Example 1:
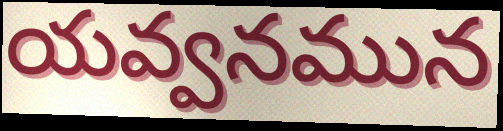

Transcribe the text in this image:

యవ్వనమున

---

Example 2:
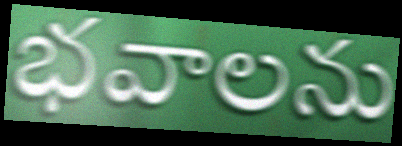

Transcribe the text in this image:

భవాలను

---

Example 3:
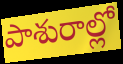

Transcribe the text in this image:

పాశురాల్లో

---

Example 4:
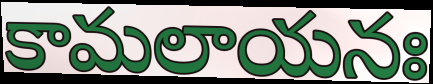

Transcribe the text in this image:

కామలాయనః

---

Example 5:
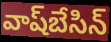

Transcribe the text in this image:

వాష్‌బేసిన్